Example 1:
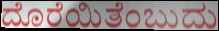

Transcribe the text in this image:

ದೊರೆಯಿತೆಂಬುದು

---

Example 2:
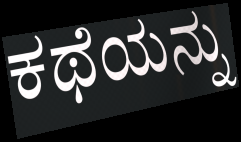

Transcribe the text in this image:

ಕಥೆಯನ್ನು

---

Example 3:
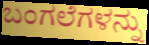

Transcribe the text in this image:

ಬಂಗಲೆಗಳನ್ನು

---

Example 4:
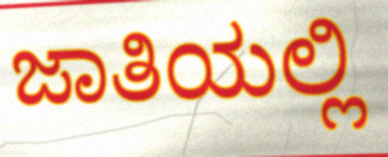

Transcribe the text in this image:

ಜಾತಿಯಲ್ಲಿ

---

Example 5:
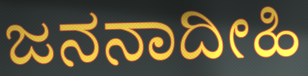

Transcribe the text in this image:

ಜನನಾದೀಹಿ